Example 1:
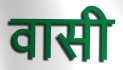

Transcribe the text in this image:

वासी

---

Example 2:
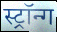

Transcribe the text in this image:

स्ट्रॉन्ग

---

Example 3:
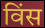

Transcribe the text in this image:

विंस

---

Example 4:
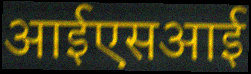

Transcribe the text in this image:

आईएसआई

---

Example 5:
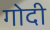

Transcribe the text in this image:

गोदी